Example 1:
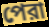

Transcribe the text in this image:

পেরা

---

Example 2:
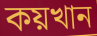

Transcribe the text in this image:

কয়খান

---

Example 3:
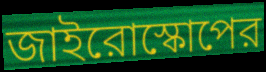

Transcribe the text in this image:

জাইরোস্কোপের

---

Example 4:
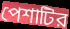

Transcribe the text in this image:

পেশাটির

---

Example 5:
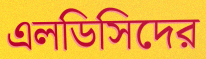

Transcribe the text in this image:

এলডিসিদের